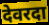
देवरदा